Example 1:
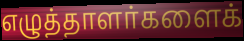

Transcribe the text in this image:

எழுத்தாளர்களைக்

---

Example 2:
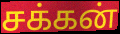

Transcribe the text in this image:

சக்கன்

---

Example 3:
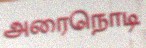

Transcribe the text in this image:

அரைநொடி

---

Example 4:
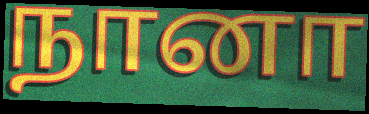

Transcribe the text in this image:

நானா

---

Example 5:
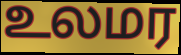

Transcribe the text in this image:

உலமர